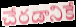
చేరడానికే